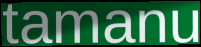
tamanu